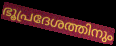
ഭൂപ്രദേശത്തിനും